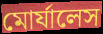
মোর্যালেস